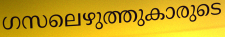
ഗസലെഴുത്തുകാരുടെ